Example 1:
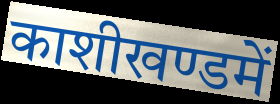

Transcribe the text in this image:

काशीखण्डमें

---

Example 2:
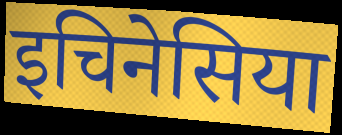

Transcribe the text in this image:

इचिनेसिया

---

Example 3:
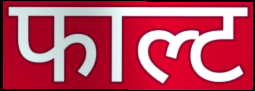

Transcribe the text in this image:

फाल्ट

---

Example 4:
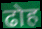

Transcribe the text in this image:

ढोह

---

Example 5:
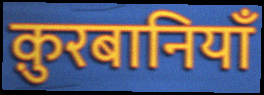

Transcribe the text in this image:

क़ुरबानियाँ